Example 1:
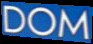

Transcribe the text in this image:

DOM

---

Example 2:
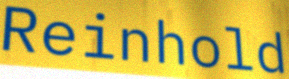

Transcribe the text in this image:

Reinhold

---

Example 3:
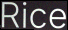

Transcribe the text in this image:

Rice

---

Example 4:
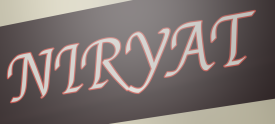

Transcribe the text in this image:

NIRYAT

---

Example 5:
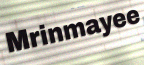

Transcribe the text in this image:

Mrinmayee